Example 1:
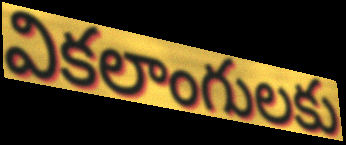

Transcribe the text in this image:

వికలాంగులకు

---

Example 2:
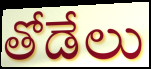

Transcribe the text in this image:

తోడేలు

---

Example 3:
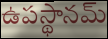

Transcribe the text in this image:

ఉపస్థానమ్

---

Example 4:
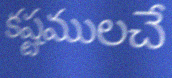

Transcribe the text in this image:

కష్టములచే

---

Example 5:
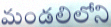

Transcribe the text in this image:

మండలిలోని